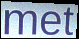
met